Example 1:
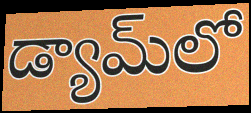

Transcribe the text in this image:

డ్యామ్‌లో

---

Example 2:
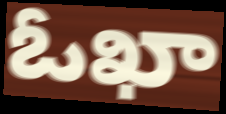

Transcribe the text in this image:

ఓఖా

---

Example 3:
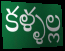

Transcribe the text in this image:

కళ్ళల్ల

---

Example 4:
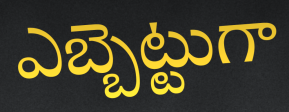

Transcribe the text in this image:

ఎబ్బెట్టుగా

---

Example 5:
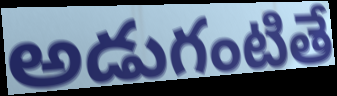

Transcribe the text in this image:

అడుగంటితే